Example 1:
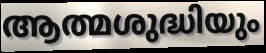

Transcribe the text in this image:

ആത്മശുദ്ധിയും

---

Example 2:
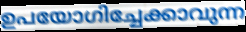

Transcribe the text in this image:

ഉപയോഗിച്ചേക്കാവുന്ന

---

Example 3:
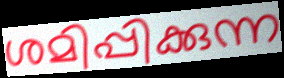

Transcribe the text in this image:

ശമിപ്പിക്കുന്ന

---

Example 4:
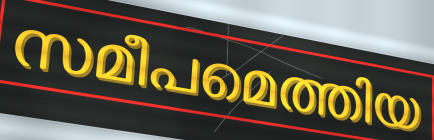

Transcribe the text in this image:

സമീപമെത്തിയ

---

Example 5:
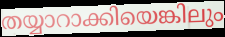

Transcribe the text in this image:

തയ്യാറാക്കിയെങ്കിലും